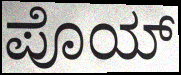
ಪೊಯ್